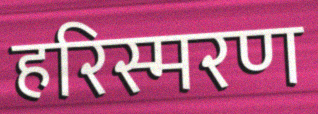
हरिस्मरण